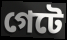
গেটে